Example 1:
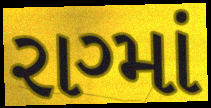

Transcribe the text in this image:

રાગ્માં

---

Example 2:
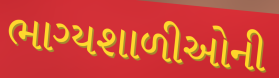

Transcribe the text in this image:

ભાગ્યશાળીઓની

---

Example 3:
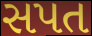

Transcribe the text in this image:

સપત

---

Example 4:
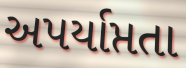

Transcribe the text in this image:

અપર્યાપ્તતા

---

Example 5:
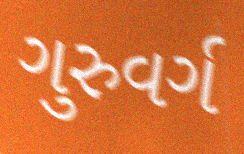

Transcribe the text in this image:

ગુરુવર્ગ